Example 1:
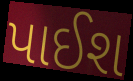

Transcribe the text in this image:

પાઈશ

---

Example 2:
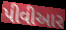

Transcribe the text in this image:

પીવીઆર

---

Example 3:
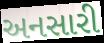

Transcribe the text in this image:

અનસારી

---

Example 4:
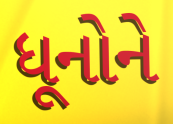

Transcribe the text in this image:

ધૂનોને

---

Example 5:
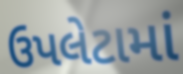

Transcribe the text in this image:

ઉપલેટામાં